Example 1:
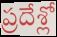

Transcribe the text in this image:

ప్రదేశ్లో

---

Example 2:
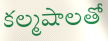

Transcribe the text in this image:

కల్మషాలతో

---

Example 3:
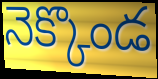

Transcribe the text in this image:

నెక్కొండ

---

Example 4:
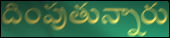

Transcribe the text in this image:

దింపుతున్నారు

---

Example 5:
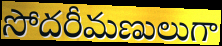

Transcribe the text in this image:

సోదరీమణులుగా